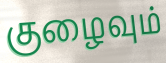
குழைவும்